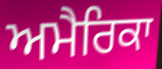
ਅਮੈਰਿਕਾ